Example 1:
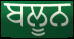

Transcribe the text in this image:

ਬਲੂਨ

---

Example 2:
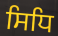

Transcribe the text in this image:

ਸਿਧਿ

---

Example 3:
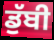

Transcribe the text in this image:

ਡੁੱਬੀ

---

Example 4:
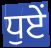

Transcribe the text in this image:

ਧੁਏਂ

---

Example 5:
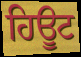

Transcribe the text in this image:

ਹਿਊਟ